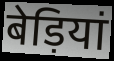
बेड़ियां